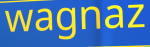
wagnaz